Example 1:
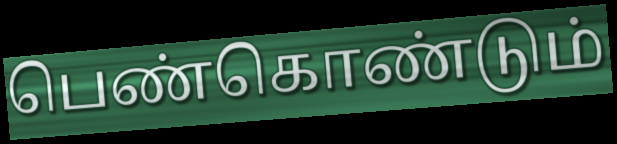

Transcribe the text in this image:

பெண்கொண்டும்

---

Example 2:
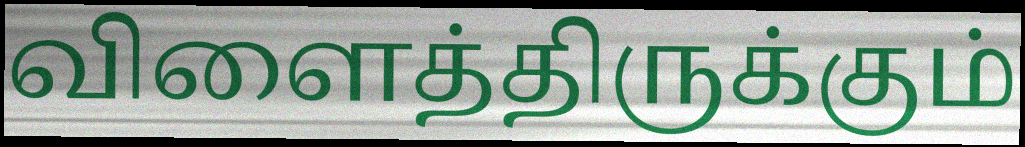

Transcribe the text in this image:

விளைத்திருக்கும்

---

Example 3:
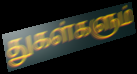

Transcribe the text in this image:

துகள்களும்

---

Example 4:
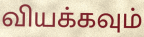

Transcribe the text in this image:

வியக்கவும்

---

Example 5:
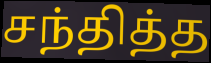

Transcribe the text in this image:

சந்தித்த